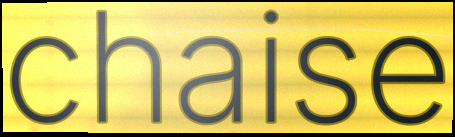
chaise